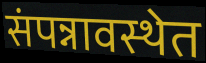
संपन्नावस्थेत